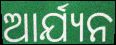
ଆର୍ଯ୍ୟନ